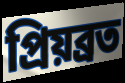
প্ৰিয়ব্ৰত